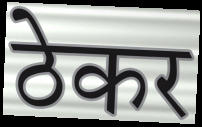
ठेकर